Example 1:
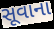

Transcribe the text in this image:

સૂવાના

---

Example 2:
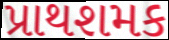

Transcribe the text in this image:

પ્રાથશમક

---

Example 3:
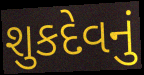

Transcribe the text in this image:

શુકદેવનું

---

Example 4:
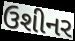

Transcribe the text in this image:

ઉશીનર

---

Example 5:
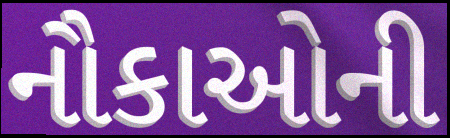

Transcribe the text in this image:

નૌકાઓની